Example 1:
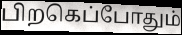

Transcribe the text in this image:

பிறகெப்போதும்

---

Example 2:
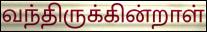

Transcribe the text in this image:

வந்திருக்கின்றாள்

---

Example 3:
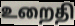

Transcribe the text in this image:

உறைதி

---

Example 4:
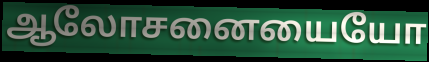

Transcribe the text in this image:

ஆலோசனையையோ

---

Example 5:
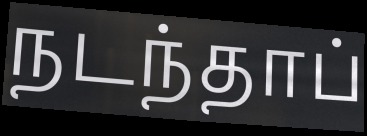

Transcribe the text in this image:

நடந்தாப்